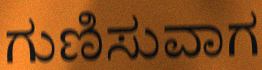
ಗುಣಿಸುವಾಗ